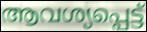
ആവശ്യപ്പെട്ട്